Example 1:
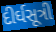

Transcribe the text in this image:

દીર્ઘસૂત્રી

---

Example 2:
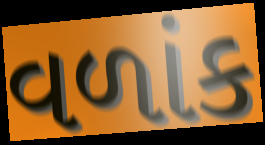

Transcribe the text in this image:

વળાંક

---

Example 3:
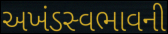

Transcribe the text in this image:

અખંડસ્વભાવની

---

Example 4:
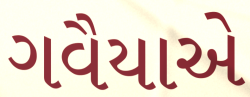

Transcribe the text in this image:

ગવૈયાએ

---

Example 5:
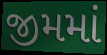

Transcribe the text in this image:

જીમમાં